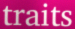
traits